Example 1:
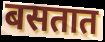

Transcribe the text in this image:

बसतात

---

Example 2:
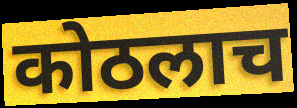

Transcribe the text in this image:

कोठलाच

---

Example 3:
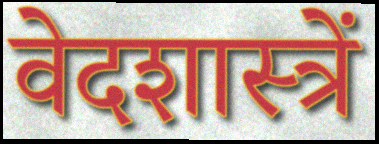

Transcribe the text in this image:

वेदशास्त्रें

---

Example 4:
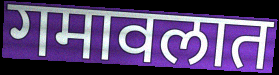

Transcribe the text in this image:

गमावलात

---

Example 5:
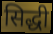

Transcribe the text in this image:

सिद्धी